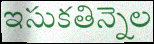
ఇసుకతిన్నెల